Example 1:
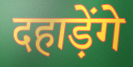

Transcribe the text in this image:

दहाड़ेंगे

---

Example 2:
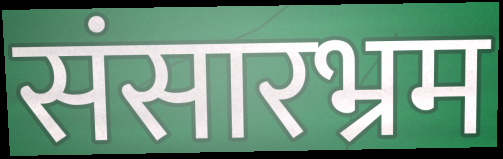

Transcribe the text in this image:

संसारभ्रम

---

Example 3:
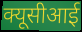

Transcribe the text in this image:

क्यूसीआई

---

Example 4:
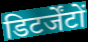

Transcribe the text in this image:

डिटर्जेंटों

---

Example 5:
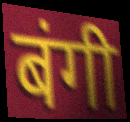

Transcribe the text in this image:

बंगी